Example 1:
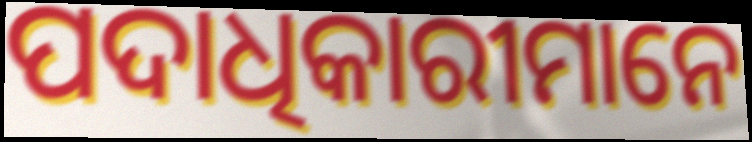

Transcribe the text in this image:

ପଦାଧିକାରୀମାନେ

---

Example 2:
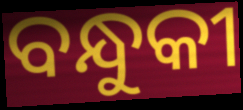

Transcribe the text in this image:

ବନ୍ଧୁକୀ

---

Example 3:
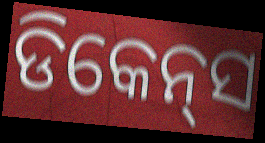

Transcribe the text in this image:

ଡିକେନ୍‌ସ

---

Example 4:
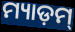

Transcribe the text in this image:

ମ୍ୟାଡ଼ମ୍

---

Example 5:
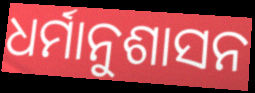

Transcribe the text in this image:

ଧର୍ମାନୁଶାସନ